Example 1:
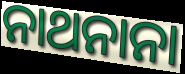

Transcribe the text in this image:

ନାଥନାନା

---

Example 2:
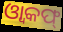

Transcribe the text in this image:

ଓ୍ଵାକଫ୍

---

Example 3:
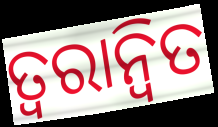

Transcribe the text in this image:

ତ୍ବରାନ୍ବିତ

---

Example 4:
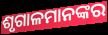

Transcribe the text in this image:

ଶୃଗାଳମାନଙ୍କର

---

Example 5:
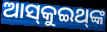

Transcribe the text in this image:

ଆସ୍‌କୁଇଥ୍‌ଙ୍କ